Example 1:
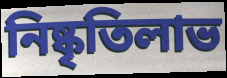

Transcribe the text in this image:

নিষ্কৃতিলাভ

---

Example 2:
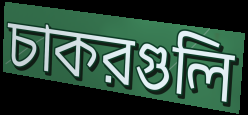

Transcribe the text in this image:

চাকরগুলি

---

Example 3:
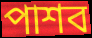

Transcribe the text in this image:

পাশব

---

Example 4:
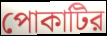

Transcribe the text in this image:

পোকাটির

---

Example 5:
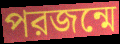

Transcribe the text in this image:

পরজন্মে